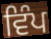
ਵਿੰਪ